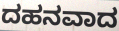
ದಹನವಾದ